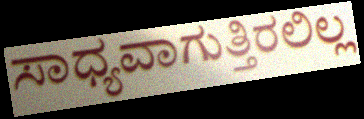
ಸಾಧ್ಯವಾಗುತ್ತಿರಲಿಲ್ಲ